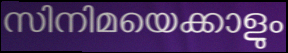
സിനിമയെക്കാളും